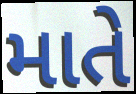
માતે